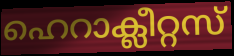
ഹെറാക്ലീറ്റസ്